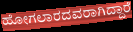
ಹೋಗಲಾರದವರಾಗಿದ್ದಾರೆ